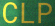
CLP